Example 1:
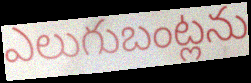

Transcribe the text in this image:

ఎలుగుబంట్లను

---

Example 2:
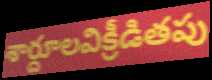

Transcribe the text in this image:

శార్దూలవిక్రీడితపు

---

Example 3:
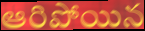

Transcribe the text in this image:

ఆరిపోయిన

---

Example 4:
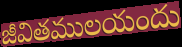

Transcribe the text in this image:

జీవితములయందు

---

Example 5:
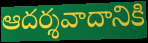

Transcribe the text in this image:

ఆదర్శవాదానికి